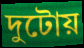
দুটোয়